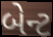
બેન્ટ